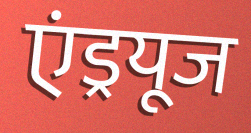
एंड्रयूज